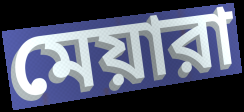
মেয়ারা